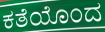
ಕತೆಯೊಂದ